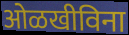
ओळखीविना